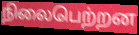
நிலைபெற்றன